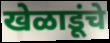
खेळाडूंचे